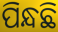
ପିନ୍ଧଛି